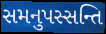
સમનુપસ્સન્તિ